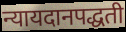
न्यायदानपद्धती